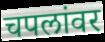
चपलांवर